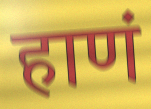
हाणं